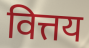
वित्तय